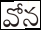
వోన